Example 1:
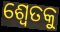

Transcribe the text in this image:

ଶ୍ଵେତକୁ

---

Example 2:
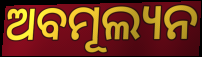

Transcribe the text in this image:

ଅବମୂଲ୍ୟନ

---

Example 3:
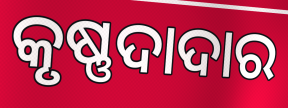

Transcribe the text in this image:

କୃଷ୍ଣଦାଦାର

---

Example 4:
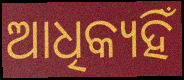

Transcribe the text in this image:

ଆଧିକ୍ୟହିଁ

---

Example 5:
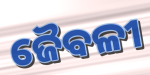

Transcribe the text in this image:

ଜୈବଳୀ